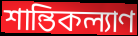
শান্তিকল্যাণ